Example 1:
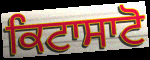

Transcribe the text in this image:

ਕਿਟਾਸਾਟੋ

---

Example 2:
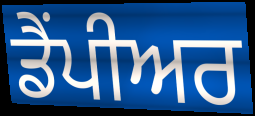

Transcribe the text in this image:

ਡੈਂਪੀਅਰ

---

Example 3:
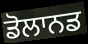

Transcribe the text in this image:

ਡੋਲਾਨਡ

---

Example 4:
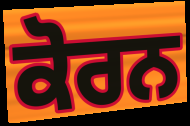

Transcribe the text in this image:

ਕੋਰਨ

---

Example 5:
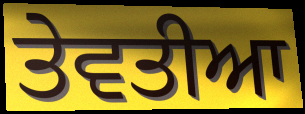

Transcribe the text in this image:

ਤੇਵਤੀਆ